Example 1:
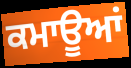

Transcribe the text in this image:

ਕਮਾਊਆਂ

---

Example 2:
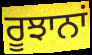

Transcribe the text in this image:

ਰੂਝਾਨਾਂ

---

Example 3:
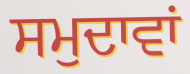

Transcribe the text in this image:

ਸਮੁਦਾਵਾਂ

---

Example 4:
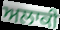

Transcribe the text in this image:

ਅਲਾਕੀ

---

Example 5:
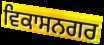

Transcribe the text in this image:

ਵਿਕਾਸਨਗਰ